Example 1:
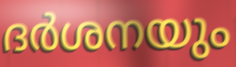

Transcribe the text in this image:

ദർശനയും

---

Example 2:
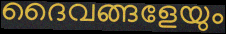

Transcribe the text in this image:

ദൈവങ്ങളേയും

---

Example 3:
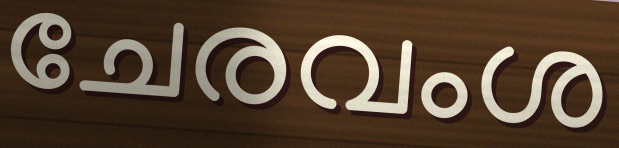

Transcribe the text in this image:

ചേരവംശ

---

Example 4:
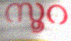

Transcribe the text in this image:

സൂറ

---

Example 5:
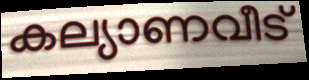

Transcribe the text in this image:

കല്യാണവീട്